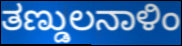
ತಣ್ಡುಲನಾಳಿಂ